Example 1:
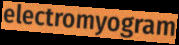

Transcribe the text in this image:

electromyogram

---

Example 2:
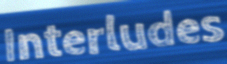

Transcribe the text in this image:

Interludes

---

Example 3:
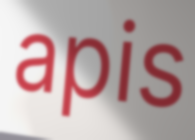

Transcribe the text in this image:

apis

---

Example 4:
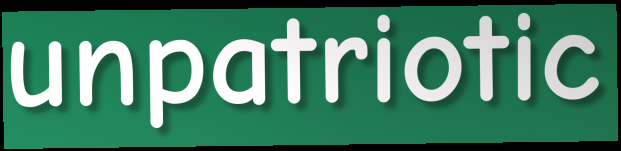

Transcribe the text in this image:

unpatriotic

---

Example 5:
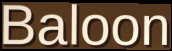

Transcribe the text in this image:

Baloon